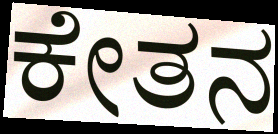
ಕೇತನ